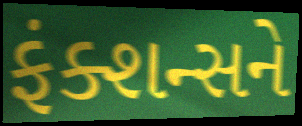
ફંક્શન્સને